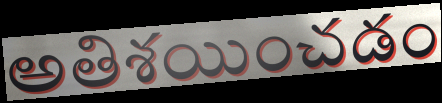
అతిశయించడం